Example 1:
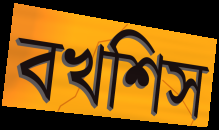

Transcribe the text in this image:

বখশিস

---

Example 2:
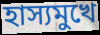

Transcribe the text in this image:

হাস্যমুখে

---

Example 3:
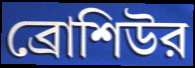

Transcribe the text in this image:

ব্রোশিউর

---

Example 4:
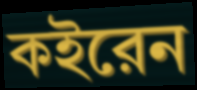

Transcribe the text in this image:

কইরেন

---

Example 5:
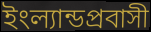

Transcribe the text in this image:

ইংল্যান্ডপ্রবাসী